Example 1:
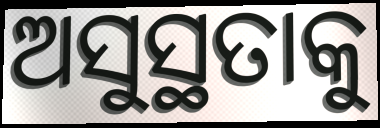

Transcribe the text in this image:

ଅସୁସ୍ଥତାକୁ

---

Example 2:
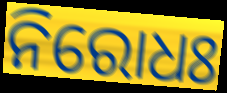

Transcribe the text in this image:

ନିରୋଧଃ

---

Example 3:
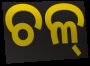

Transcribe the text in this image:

ଚଳ୍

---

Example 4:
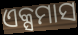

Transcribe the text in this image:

ଏକ୍ସମାସ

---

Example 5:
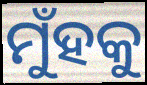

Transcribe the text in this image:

ମୁଁହକୁ